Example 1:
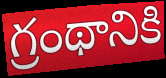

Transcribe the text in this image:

గ్రంథానికి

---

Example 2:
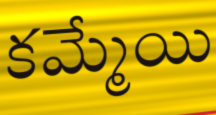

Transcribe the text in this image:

కమ్మేయి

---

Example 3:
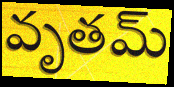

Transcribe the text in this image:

వృతమ్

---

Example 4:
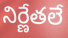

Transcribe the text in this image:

నిర్ణేతలే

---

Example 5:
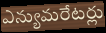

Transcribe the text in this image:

ఎన్యుమరేటర్లు